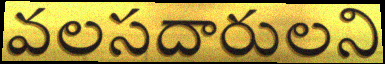
వలసదారులని